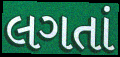
લગતાં